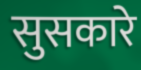
सुसकारे